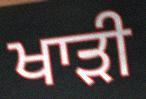
ਖਾੜੀ